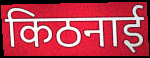
किठनाई